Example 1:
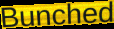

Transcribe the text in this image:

Bunched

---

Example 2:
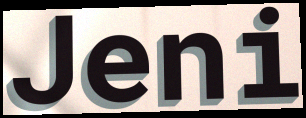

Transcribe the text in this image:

Jeni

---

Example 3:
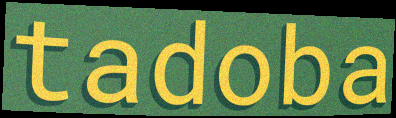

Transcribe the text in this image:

tadoba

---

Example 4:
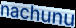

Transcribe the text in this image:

nachunu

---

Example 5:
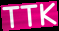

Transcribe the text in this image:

TTK